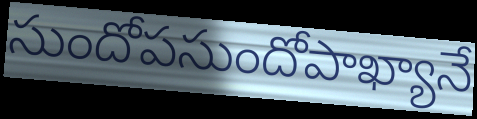
సుందోపసుందోపాఖ్యానే